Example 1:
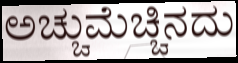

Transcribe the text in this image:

ಅಚ್ಚುಮೆಚ್ಚಿನದು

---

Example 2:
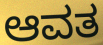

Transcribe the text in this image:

ಆವತ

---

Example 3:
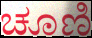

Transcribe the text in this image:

ಚೂಣಿ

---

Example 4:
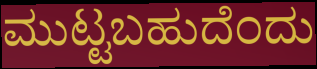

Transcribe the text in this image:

ಮುಟ್ಟಬಹುದೆಂದು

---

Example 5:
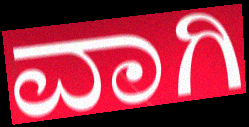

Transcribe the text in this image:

ವಾಗಿ